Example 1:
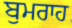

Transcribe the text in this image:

ਬੁਮਰਾਹ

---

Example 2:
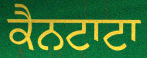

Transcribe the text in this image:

ਕੈਨਟਾਟਾ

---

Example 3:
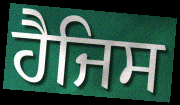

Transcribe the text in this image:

ਹੈਜਿਸ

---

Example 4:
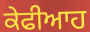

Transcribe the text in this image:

ਕੇਫੀਆਹ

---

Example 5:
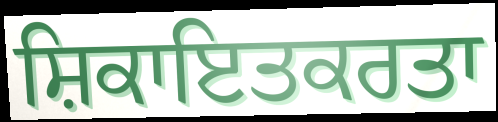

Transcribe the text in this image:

ਸ਼ਿਕਾਇਤਕਰਤਾ